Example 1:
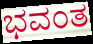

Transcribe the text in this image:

ಭವಂತ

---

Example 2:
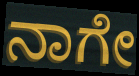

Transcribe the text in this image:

ನಾಗೇ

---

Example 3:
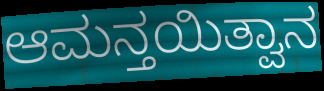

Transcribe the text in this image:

ಆಮನ್ತಯಿತ್ವಾನ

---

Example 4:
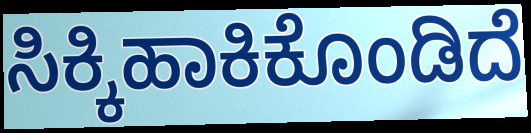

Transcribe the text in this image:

ಸಿಕ್ಕಿಹಾಕಿಕೊಂಡಿದೆ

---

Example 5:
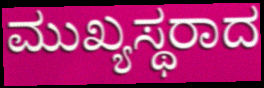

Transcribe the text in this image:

ಮುಖ್ಯಸ್ಥರಾದ